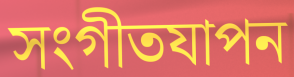
সংগীতযাপন